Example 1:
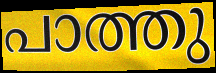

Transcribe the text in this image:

പാത്തു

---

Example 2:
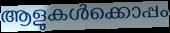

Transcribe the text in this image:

ആളുകൾക്കൊപ്പം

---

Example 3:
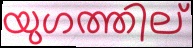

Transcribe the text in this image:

യുഗത്തില്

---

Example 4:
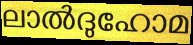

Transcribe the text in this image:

ലാൽദുഹോമ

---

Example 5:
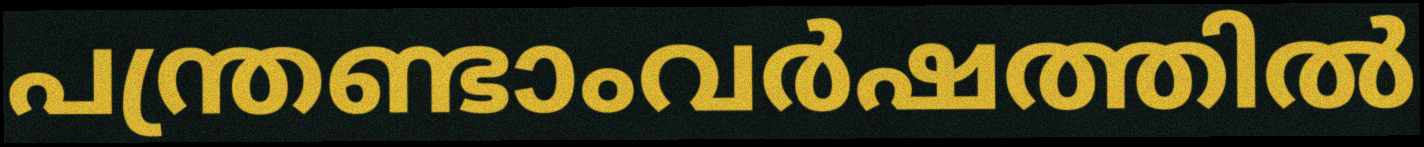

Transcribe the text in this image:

പന്ത്രണ്ടാംവർഷത്തിൽ